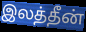
இலத்தீன்